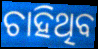
ଚାହିଥିବ